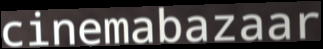
cinemabazaar